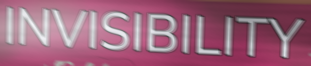
INVISIBILITY